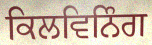
ਕਿਲਵਿਨਿੰਗ